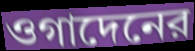
ওগাদেনের